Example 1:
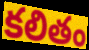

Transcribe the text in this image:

కలితం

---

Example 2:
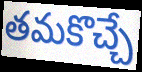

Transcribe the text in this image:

తమకొచ్చే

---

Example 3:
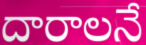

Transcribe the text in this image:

దారాలనే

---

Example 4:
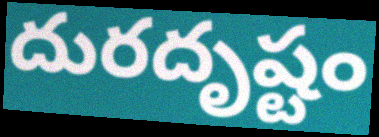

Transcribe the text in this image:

దురదృష్టం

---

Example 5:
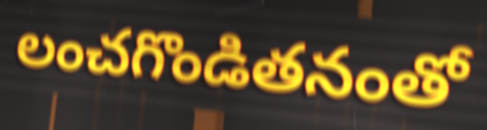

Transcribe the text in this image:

లంచగొండితనంతో